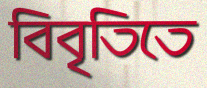
বিবৃতিতে